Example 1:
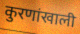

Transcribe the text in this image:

कुरणांखाली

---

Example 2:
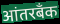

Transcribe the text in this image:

आंतरबँक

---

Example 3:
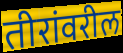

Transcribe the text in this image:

तीरांवरील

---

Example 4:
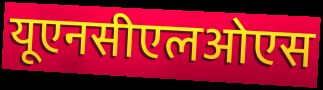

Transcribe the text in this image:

यूएनसीएलओएस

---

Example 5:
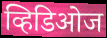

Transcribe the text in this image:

व्हिडिओज